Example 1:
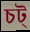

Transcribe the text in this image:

চট্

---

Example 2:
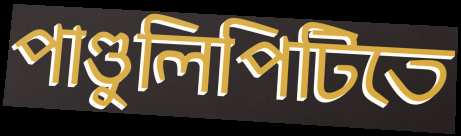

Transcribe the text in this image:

পাণ্ডুলিপিটিতে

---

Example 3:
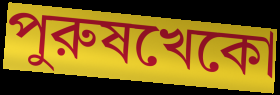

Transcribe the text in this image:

পুরুষখেকো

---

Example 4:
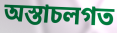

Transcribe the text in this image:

অস্তাচলগত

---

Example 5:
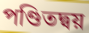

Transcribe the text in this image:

পণ্ডিতদ্বয়